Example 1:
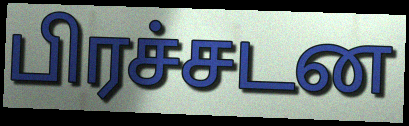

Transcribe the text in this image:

பிரச்சடன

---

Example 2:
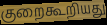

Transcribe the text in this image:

குறைகூறியது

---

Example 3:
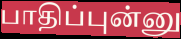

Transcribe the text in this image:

பாதிப்புன்னு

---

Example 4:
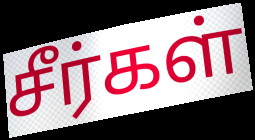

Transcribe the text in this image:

சீர்கள்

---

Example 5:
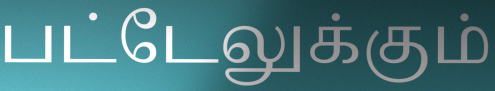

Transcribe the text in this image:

பட்டேலுக்கும்